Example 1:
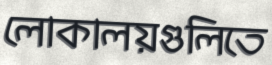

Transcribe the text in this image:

লোকালয়গুলিতে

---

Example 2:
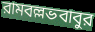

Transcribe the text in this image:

রামবল্লভবাবুর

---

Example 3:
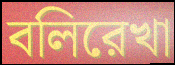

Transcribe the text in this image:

বলিরেখা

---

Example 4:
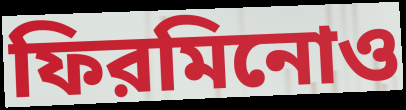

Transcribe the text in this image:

ফিরমিনোও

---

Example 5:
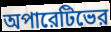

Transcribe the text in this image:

অপারেটিভের